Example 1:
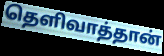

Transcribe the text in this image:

தெளிவாத்தான்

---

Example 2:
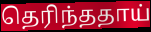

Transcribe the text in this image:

தெரிந்ததாய்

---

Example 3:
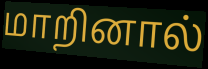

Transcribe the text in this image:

மாறினால்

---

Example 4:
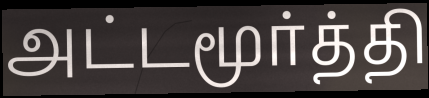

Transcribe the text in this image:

அட்டமூர்த்தி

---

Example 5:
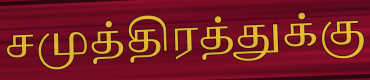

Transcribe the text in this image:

சமுத்திரத்துக்கு